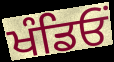
ਖੰਡਿਓਂ